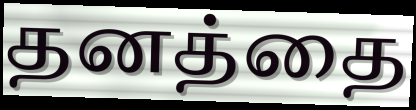
தனத்தை